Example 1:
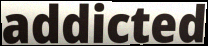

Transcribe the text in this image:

addicted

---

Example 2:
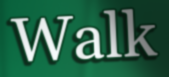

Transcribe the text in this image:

Walk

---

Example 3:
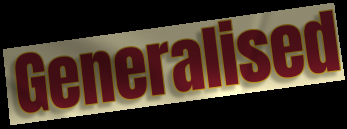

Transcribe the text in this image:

Generalised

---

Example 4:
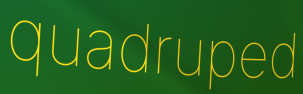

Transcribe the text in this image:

quadruped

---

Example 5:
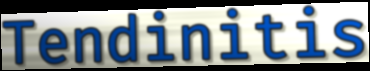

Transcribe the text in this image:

Tendinitis